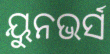
ୟୁନଭର୍ସ